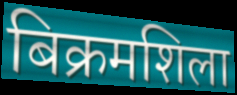
बिक्रमशिला